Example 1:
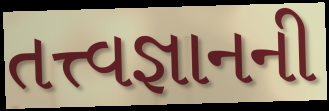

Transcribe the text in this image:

તત્ત્વજ્ઞાનની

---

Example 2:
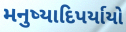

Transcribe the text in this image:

મનુષ્યાદિપર્યાયો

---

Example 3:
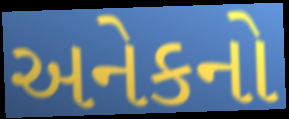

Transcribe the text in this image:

અનેકનો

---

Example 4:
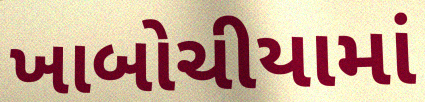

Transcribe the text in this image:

ખાબોચીયામાં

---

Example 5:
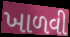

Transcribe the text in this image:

ખાળવી